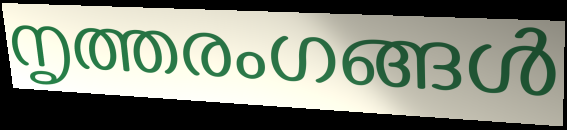
നൃത്തരംഗങ്ങൾ